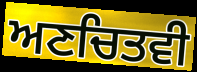
ਅਣਚਿਤਵੀ